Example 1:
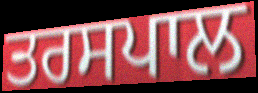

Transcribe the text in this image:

ਤਰਸਪਾਲ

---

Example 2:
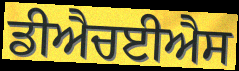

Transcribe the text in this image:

ਡੀਐਚਈਐਸ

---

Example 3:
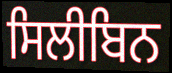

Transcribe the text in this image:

ਸਿਲੀਬਿਨ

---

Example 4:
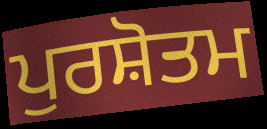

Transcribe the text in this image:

ਪੁਰਸ਼ੋਤਮ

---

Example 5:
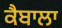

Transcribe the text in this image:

ਕੈਬਾਲਾ